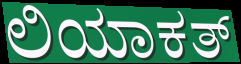
ಲಿಯಾಕತ್